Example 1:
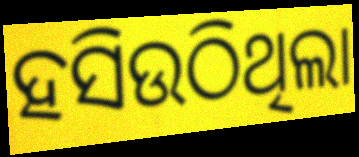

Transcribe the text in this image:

ହସିଉଠିଥିଲା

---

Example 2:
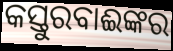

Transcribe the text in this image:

କସ୍ତୁରବାଈଙ୍କର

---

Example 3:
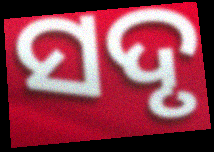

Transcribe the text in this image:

ସଦୃ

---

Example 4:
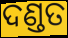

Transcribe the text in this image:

ଦଣ୍ଡତ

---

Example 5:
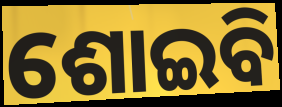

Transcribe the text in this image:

ଶୋଇବି